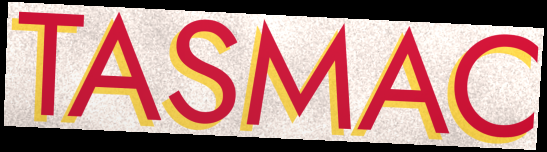
TASMAC